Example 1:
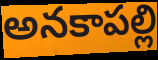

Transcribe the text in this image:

అనకాపల్లి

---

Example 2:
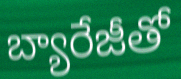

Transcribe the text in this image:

బ్యారేజీతో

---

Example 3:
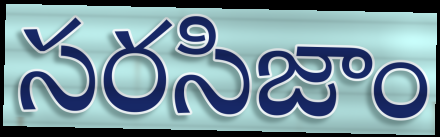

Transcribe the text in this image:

సరసిజాం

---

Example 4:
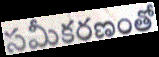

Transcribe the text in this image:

సమీకరణంతో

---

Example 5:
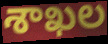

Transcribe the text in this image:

శాఖల